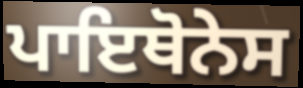
ਪਾਇਥੋਨੇਸ